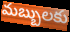
మబ్బులకు